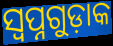
ସ୍ୱପ୍ନଗୁଡ଼ାକ